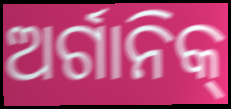
ଅର୍ଗାନିକ୍